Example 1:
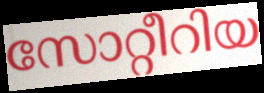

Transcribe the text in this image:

സോറ്റീറിയ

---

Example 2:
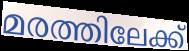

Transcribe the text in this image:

മരത്തിലേക്ക്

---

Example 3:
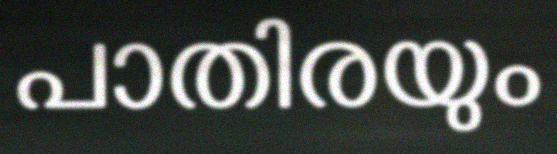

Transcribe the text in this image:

പാതിരയും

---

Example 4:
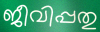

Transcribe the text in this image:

ജീവിപ്പതു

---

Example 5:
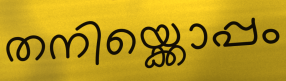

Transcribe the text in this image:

തനിയ്ക്കൊപ്പം